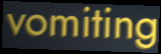
vomiting